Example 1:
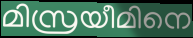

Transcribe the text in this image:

മിസ്രയീമിനെ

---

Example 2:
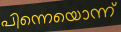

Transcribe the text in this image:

പിന്നെയൊന്ന്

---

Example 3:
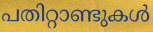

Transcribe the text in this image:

പതിറ്റാണ്ടുകൾ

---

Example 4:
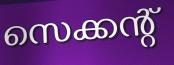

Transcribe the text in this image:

സെക്കന്റ്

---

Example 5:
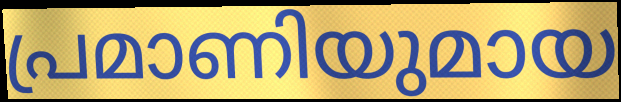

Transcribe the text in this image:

പ്രമാണിയുമായ